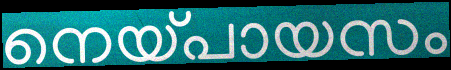
നെയ്പായസം